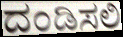
ದಂಡಿಸಲಿ